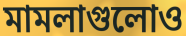
মামলাগুলোও